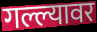
गल्ल्यावर